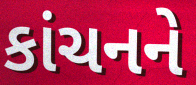
કાંચનને